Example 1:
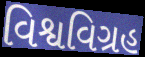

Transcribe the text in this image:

વિશ્વવિગ્રહ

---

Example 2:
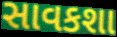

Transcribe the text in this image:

સાવકશા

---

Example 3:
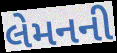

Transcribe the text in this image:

લેમનની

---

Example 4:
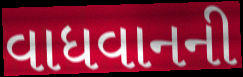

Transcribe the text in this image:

વાધવાનની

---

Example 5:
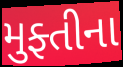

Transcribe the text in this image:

મુફ્તીના